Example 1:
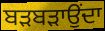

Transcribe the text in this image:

ਬੜਬੜਾਉਂਦਾ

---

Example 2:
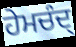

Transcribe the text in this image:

ਹੇਮਚੰਦ੍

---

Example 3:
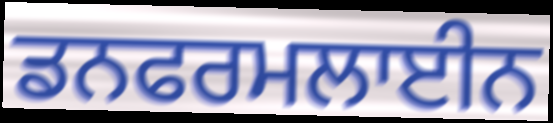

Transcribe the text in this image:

ਡਨਫਰਮਲਾਈਨ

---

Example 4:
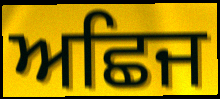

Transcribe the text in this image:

ਅਛਿਜ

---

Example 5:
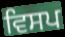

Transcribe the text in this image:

ਵਿਸਪ